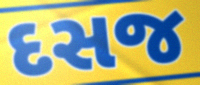
દસજ